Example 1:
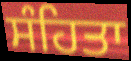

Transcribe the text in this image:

ਸੰਹਿਤਾ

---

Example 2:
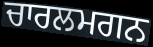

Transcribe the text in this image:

ਚਾਰਲਮਗਨ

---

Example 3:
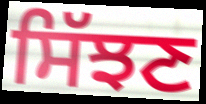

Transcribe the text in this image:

ਸਿੱਝਣ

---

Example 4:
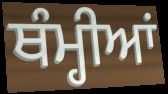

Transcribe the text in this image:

ਥੰਮ੍ਹੀਆਂ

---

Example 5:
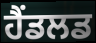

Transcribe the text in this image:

ਹੈਂਡਲਡ